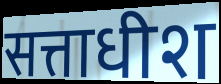
सत्ताधीश